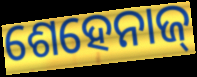
ଶେହେନାଜ୍